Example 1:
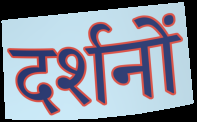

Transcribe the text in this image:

दर्शनों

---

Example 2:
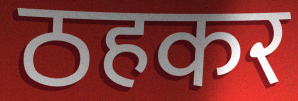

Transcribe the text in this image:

ठहकर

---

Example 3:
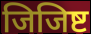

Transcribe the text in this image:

जिजिष्ट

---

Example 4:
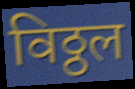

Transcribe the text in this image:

विठ्ठल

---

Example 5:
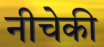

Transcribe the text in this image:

नीचेकी